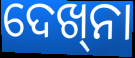
ଦେଖ୍‌ନା